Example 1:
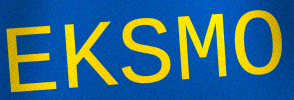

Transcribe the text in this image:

EKSMO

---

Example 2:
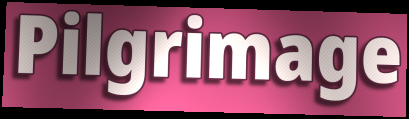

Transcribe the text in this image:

Pilgrimage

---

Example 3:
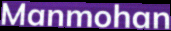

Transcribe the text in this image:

Manmohan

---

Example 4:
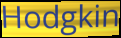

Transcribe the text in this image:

Hodgkin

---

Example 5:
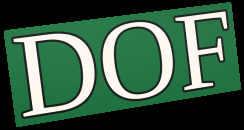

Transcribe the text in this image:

DOF